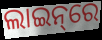
ଲାଇନ୍‌ରେ